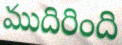
ముదిరింది